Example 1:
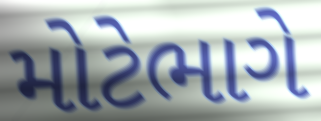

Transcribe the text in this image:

મોટેભાગે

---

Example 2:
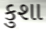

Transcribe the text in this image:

કુશા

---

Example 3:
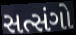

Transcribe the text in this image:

સત્સંગો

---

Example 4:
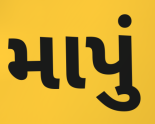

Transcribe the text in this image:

માપું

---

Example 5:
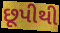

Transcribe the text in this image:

છૂપીથી